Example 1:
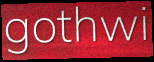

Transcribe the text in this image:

gothwi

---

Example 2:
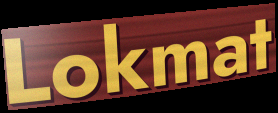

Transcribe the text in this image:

Lokmat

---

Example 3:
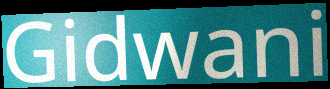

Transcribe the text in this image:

Gidwani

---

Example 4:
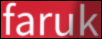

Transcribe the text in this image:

faruk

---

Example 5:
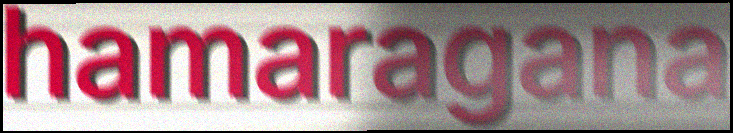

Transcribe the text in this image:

hamaragana